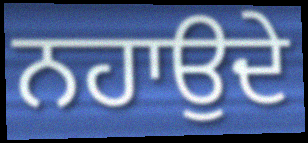
ਨਹਾਉਦੇ